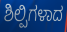
ಶಿಲ್ಪಿಗಳಾದ